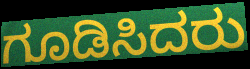
ಗೂಡಿಸಿದರು